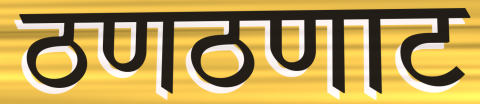
ठणठणाट